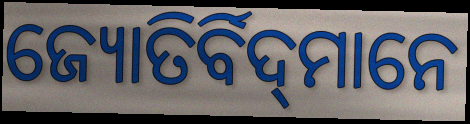
ଜ୍ୟୋତିର୍ବିଦ୍‌ମାନେ